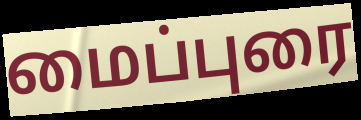
மைப்புரை